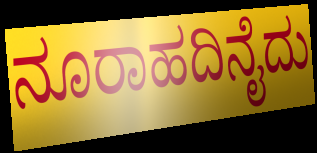
ನೂರಾಹದಿನೈದು